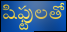
షిఫ్టులతో